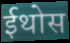
ईथोस